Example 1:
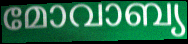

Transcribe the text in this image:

മോവാബ്യ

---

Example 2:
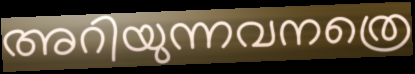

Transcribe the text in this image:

അറിയുന്നവനത്രെ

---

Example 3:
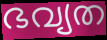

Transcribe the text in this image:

ഭവ്യത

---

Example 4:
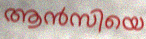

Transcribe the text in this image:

ആൻസിയെ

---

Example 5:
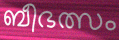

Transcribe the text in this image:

ബീഭത്സം